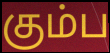
கும்ப